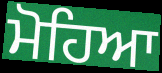
ਮੋਹਿਆ